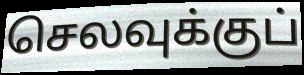
செலவுக்குப்